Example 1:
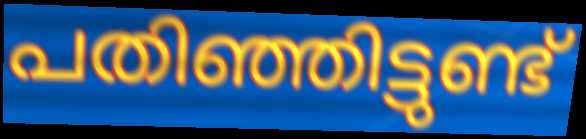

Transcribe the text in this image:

പതിഞ്ഞിട്ടുണ്ട്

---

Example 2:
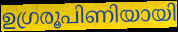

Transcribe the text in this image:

ഉഗ്രരൂപിണിയായി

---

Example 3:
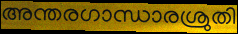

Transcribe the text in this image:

അന്തരഗാന്ധാരശ്രുതി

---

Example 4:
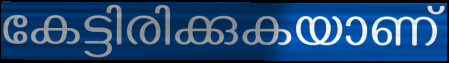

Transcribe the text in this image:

കേട്ടിരിക്കുകയാണ്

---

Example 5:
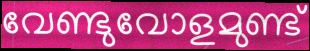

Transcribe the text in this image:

വേണ്ടുവോളമുണ്ട്